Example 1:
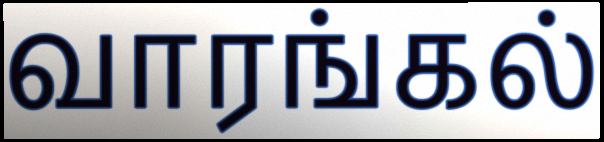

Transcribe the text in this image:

வாரங்கல்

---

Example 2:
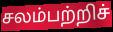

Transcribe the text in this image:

சலம்பற்றிச்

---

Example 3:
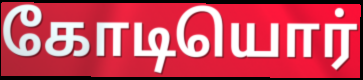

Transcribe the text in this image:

கோடியொர்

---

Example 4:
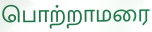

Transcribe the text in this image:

பொற்றாமரை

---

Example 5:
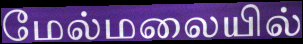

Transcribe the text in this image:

மேல்மலையில்